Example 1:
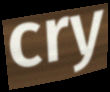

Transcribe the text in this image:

cry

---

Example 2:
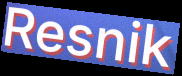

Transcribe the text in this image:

Resnik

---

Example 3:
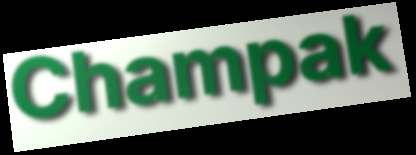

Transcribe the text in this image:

Champak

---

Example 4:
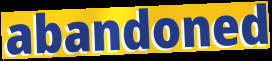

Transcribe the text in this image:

abandoned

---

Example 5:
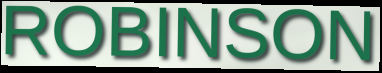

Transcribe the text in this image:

ROBINSON